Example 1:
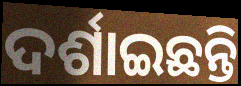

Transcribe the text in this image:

ଦର୍ଶାଇଛନ୍ତି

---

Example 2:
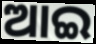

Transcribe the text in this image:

ଆଇ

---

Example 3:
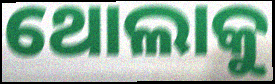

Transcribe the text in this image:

ଥୋଲାକୁ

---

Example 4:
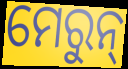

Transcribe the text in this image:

ମେରୁନ୍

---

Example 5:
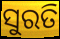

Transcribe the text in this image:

ସୁରତି